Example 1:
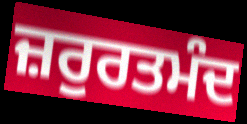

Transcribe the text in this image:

ਜ਼ਰੁਰਤਮੰਦ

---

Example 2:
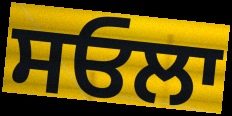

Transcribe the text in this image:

ਸਓਲਾ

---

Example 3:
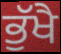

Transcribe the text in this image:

ਭੁੱਖੈ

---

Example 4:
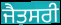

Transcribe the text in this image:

ਜੈਤਸਰੀ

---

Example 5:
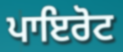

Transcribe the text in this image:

ਪਾਇਰੋਟ